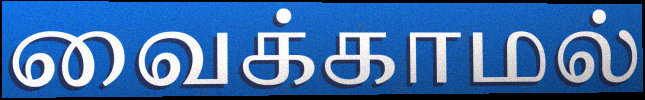
வைக்காமல்